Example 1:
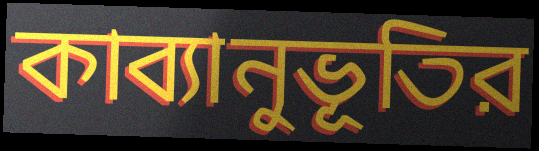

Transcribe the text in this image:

কাব্যানুভূতির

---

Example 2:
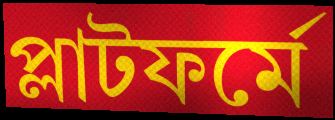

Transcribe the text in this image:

প্লাটফর্মে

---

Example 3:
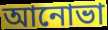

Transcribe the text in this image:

আনোভা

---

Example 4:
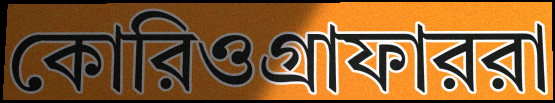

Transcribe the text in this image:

কোরিওগ্রাফাররা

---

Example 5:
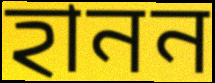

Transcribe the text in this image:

হানন